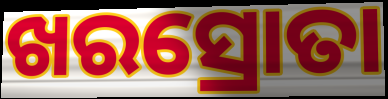
ଖରସ୍ରୋତା